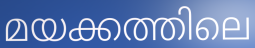
മയക്കത്തിലെ